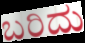
ಬರಿದು